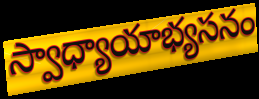
స్వాధ్యాయాభ్యసనం